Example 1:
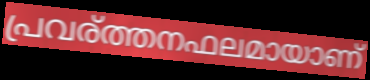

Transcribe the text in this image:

പ്രവര്ത്തനഫലമായാണ്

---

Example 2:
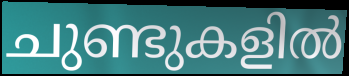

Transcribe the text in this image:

ചുണ്ടുകളിൽ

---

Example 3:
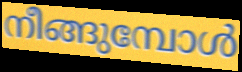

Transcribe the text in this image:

നീങ്ങുമ്പോൾ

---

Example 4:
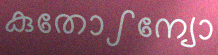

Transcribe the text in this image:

കുതോഽന്യോ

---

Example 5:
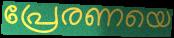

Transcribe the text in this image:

പ്രേരണയെ